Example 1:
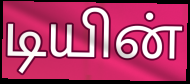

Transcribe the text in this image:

டியின்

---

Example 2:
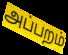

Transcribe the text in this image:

அப்பறம்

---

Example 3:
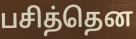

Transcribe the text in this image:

பசித்தென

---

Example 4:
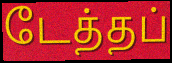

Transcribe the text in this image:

டேத்தப்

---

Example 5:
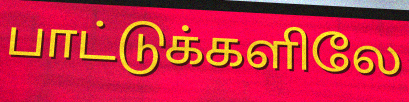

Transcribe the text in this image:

பாட்டுக்களிலே